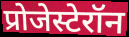
प्रोजेस्टेरॉन